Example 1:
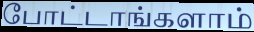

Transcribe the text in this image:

போட்டாங்களாம்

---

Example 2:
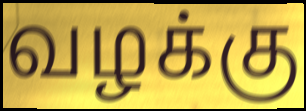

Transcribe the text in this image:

வழக்கு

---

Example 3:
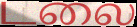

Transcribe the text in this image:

டலை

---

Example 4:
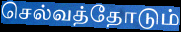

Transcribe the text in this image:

செல்வத்தோடும்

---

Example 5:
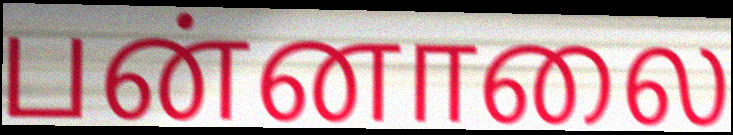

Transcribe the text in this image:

பன்னாலை